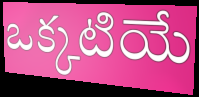
ఒక్కటియే